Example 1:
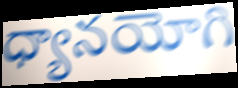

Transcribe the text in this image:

ధ్యానయోగి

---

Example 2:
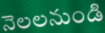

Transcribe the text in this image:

నెలలనుండి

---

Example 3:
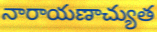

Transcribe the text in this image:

నారాయణాచ్యుత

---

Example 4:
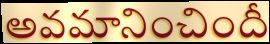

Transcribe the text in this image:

అవమానించిందీ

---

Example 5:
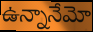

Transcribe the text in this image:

ఉన్నానేమో